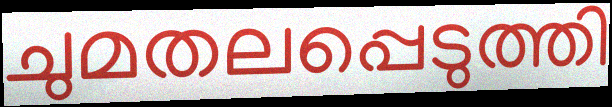
ചുമതലപ്പെടുത്തി